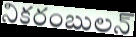
నికరంబులన్